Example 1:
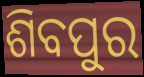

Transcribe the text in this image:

ଶିବପୁର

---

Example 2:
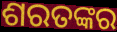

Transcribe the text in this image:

ଶରତଙ୍କର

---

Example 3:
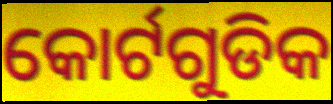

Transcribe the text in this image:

କୋର୍ଟଗୁଡିକ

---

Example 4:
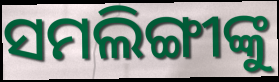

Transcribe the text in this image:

ସମଲିଙ୍ଗୀଙ୍କୁ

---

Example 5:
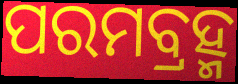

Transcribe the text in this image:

ପରମବ୍ରହ୍ମ